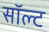
सॉल्ट